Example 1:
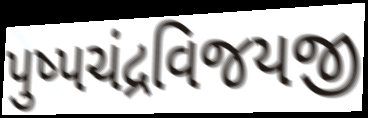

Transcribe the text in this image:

પુષ્પચંદ્રવિજયજી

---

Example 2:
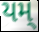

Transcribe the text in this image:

યમ્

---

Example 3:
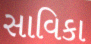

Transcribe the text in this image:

સાવિકા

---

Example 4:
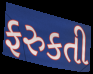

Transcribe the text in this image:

ફરુકતી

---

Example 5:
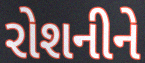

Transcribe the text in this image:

રોશનીને